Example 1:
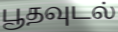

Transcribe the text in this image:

பூதவுடல்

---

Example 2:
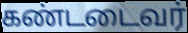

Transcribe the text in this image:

கண்டடைவர்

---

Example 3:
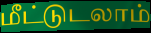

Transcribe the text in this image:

மீட்டுடலாம்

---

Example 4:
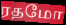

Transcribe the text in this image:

ரதமோ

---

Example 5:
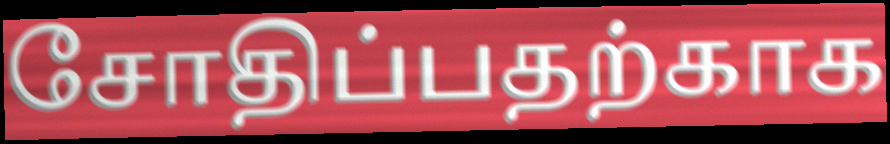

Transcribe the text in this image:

சோதிப்பதற்காக